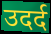
उदर्द